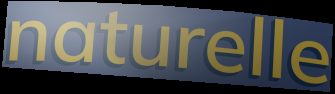
naturelle